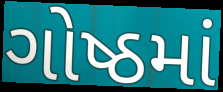
ગોષ્ઠમાં